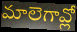
మాలెగావ్లో